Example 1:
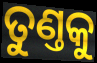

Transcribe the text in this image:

ତୁଣ୍ତକୁ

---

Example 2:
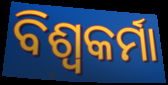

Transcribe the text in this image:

ବିଶ୍ବକର୍ମା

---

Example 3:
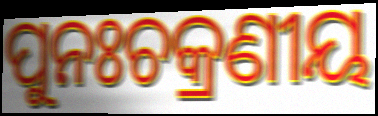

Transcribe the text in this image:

ପୁନଃଚକ୍ରଣୀୟ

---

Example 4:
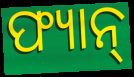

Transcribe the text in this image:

ଫ୍ୟାନ୍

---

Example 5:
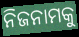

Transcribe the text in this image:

ନିଜନାମକୁ